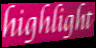
highlight